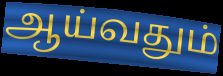
ஆய்வதும்